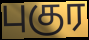
புகுர